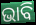
ଭାବି